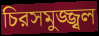
চিরসমুজ্জ্বল